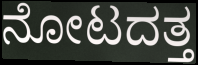
ನೋಟದತ್ತ